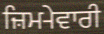
ਜ਼ਿਮ੍ਮੇਵਾਰੀ